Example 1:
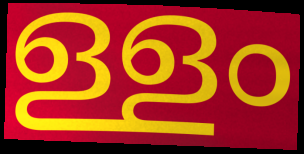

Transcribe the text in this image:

ള്ളം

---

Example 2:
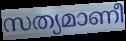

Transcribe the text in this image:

സത്യമാണീ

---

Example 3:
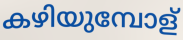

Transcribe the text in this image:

കഴിയുമ്പോള്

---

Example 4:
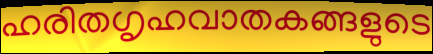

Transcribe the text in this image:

ഹരിതഗൃഹവാതകങ്ങളുടെ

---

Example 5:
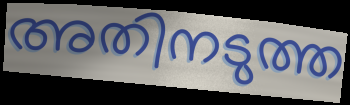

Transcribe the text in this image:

അതിനടുത്ത